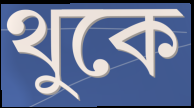
থুকে